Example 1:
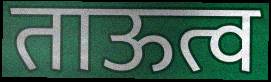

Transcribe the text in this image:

ताऊत्व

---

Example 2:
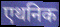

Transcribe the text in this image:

एथनिक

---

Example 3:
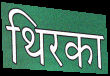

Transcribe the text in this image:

थिरका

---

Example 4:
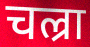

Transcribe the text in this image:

चल्रा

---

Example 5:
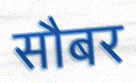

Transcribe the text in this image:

सौबर